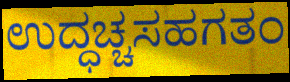
ಉದ್ಧಚ್ಚಸಹಗತಂ